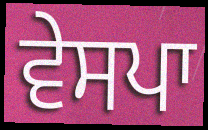
ਵੇਸਪਾ